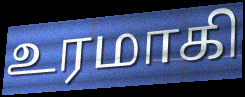
உரமாகி